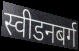
स्वीडनबर्ग